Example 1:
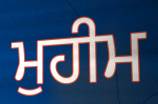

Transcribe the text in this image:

ਮੁਹੀਮ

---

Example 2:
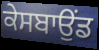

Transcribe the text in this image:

ਕੇਸਬਾਉਂਡ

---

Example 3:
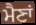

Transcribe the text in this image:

ਮੈਣਾਂ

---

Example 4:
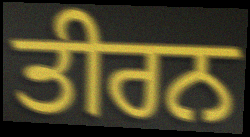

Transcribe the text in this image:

ਤੀਰਨ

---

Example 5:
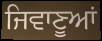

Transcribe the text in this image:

ਜਿਵਾਣੂਆਂ